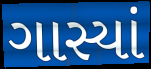
ગાસ્યાં